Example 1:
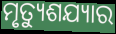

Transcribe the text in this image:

ମୃତ୍ୟୁଶଯ୍ୟାର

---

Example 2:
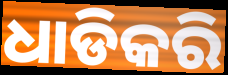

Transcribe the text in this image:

ଧାଡିକରି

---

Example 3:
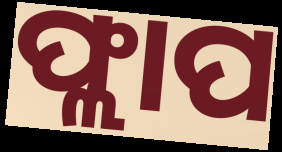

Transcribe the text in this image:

ଫ୍ଲାପ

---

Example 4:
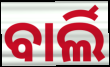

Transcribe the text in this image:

ବାର୍ଲି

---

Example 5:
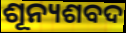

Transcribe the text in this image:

ଶୂନ୍ୟଶବଦ